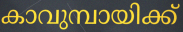
കാവുമ്പായിക്ക്